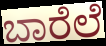
ಬಾರೆಲೆ